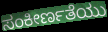
ಸಂಕೀರ್ಣತೆಯು